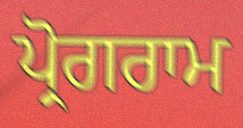
ਪ੍ਰੋਗਰਾਮ